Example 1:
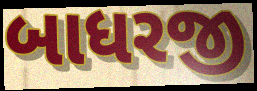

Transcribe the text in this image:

બાધરજી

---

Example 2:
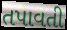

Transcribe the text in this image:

તપાવતી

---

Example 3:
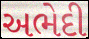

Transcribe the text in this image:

અભેદી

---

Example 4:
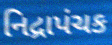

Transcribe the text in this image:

નિદ્રાપંચક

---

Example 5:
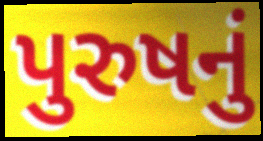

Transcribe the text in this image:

પુરુષનું